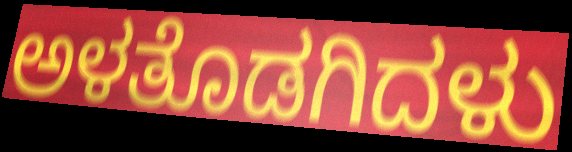
ಅಳತೊಡಗಿದಳು